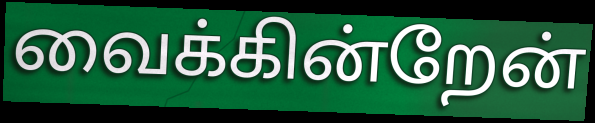
வைக்கின்றேன்